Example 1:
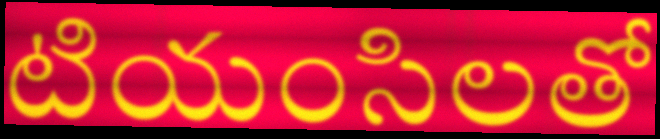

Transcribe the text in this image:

టియంసిలతో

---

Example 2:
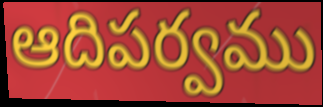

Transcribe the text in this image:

ఆదిపర్వము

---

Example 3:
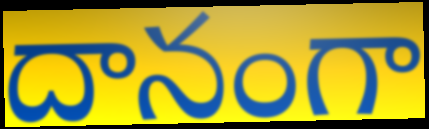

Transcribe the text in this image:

దానంగా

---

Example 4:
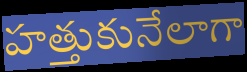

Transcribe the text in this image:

హత్తుకునేలాగా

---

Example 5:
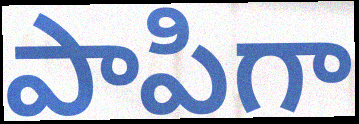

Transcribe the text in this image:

పాపిగా